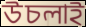
উচলাই